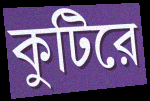
কুটিরে